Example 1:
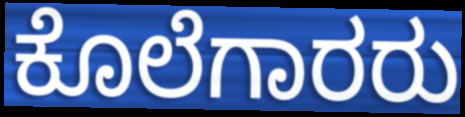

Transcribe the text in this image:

ಕೊಲೆಗಾರರು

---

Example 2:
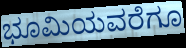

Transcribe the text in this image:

ಭೂಮಿಯವರೆಗೂ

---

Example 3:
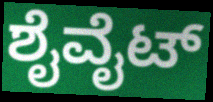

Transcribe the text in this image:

ಶೈವೈಟ್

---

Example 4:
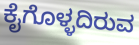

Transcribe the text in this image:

ಕೈಗೊಳ್ಳದಿರುವ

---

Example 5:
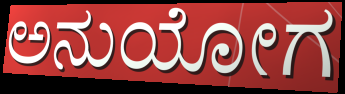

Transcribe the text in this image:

ಅನುಯೋಗ